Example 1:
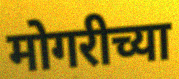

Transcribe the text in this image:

मोगरीच्या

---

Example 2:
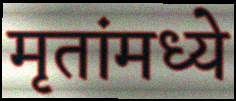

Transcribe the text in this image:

मृतांमध्ये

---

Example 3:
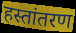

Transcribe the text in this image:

हस्तांतरण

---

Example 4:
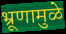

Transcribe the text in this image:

भ्रूणामुळे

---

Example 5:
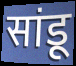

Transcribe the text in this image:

सांडू